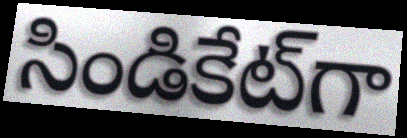
సిండికేట్‌గా